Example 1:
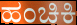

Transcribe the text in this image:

ಹಂಚಿಕಿ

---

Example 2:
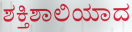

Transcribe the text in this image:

ಶಕ್ತಿಶಾಲಿಯಾದ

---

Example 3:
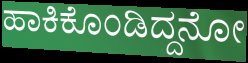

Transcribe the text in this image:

ಹಾಕಿಕೊಂಡಿದ್ದನೋ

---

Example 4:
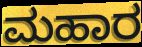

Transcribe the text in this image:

ಮಹಾರ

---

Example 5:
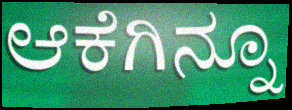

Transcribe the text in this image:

ಆಕೆಗಿನ್ನೂ